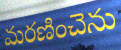
మరణించెను